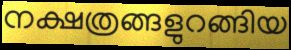
നക്ഷത്രങ്ങളുറങ്ങിയ